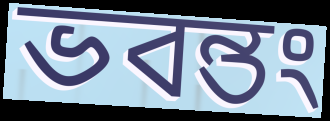
ভবন্তং